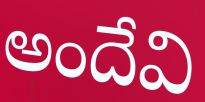
అందేవి